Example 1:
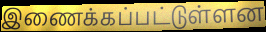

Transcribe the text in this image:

இணைக்கப்பட்டுள்ளன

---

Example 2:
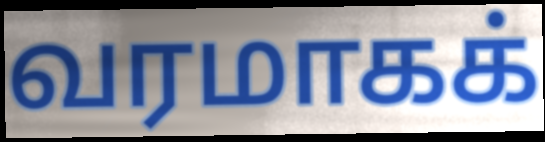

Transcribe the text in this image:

வரமாகக்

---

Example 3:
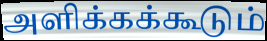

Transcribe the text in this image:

அளிக்கக்கூடும்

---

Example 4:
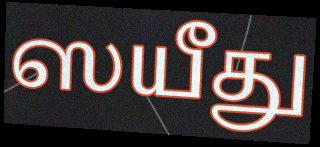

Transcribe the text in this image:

ஸயீது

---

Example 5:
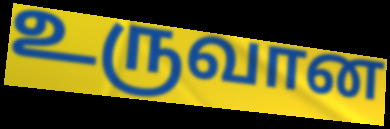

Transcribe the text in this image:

உருவான